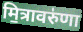
मि॒त्रावरु॑णा